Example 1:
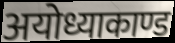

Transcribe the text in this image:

अयोध्याकाण्ड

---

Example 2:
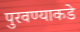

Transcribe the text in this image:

पुरवण्याकडे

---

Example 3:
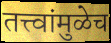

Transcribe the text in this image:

तत्त्वांमुळेच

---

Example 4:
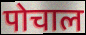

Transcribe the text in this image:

पोचाल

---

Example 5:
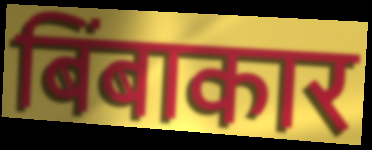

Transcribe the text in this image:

बिंबाकार